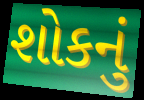
શોકનું